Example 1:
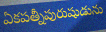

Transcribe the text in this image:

ఏకపత్నీపురుషుడును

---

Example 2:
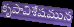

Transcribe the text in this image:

కృపావిశేషమున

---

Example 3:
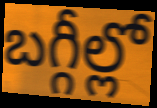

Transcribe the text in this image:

బగ్గీల్లో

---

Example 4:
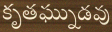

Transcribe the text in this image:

కృతఘ్నుడవు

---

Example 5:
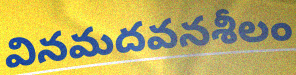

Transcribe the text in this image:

వినమదవనశీలం